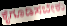
ಕೈಗೂಡಿಸಬೇಕು